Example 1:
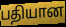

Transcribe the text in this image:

பதியான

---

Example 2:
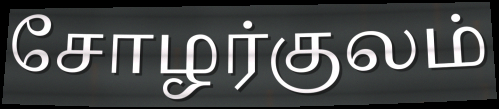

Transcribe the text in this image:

சோழர்குலம்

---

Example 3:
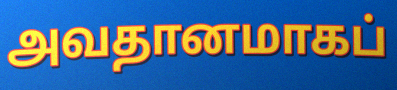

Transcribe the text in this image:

அவதானமாகப்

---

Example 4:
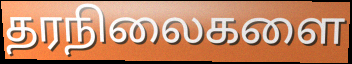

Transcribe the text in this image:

தரநிலைகளை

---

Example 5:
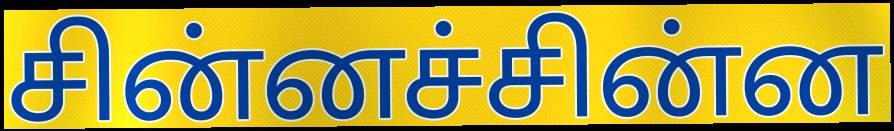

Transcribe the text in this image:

சின்னச்சின்ன